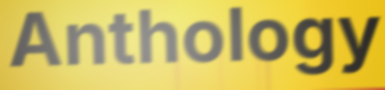
Anthology